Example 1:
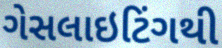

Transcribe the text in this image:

ગેસલાઇટિંગથી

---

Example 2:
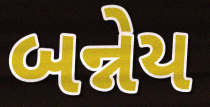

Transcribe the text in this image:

બન્નેય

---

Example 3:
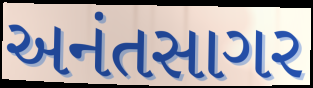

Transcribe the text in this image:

અનંતસાગર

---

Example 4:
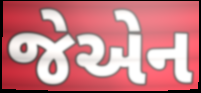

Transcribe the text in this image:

જેએન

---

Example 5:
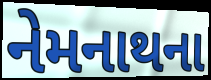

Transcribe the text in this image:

નેમનાથના